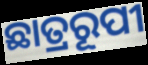
ଛାତ୍ରରୂପୀ